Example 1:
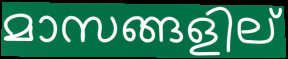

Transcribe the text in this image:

മാസങ്ങളില്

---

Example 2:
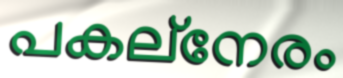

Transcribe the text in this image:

പകല്നേരം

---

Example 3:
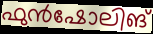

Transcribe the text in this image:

ഫുൻഷോലിങ്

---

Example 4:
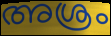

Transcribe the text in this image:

അശ്രം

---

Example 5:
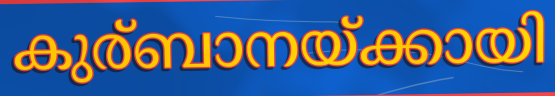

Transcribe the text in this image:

കുര്ബാനയ്ക്കായി